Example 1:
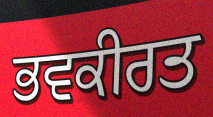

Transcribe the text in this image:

ਭਵਕੀਰਤ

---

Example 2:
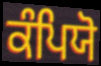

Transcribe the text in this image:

ਕੰਪਿਯੋ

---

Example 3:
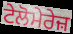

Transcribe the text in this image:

ਟੇਲੋਮੇਰੇਜ਼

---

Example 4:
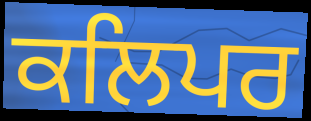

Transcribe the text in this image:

ਕਲਿਪਰ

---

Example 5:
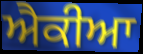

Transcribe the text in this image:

ਐਕੀਆ